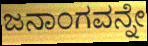
ಜನಾಂಗವನ್ನೇ